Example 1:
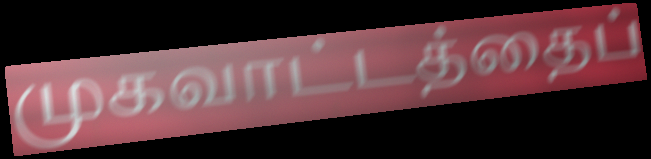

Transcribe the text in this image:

முகவாட்டத்தைப்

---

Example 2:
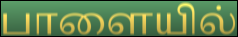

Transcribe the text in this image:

பாளையில்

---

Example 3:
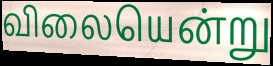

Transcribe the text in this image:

விலையென்று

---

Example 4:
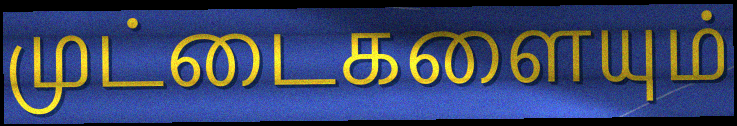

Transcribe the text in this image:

முட்டைகளையும்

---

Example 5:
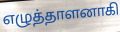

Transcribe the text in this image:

எழுத்தாளனாகி